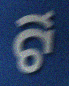
ର୍ଟି